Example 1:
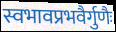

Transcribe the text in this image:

स्वभावप्रभवैर्गुणैः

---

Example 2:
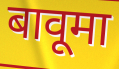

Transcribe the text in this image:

बावूमा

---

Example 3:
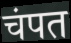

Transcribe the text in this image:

चंपत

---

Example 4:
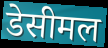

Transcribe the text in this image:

डेसीमल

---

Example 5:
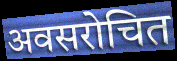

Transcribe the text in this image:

अवसरोचित